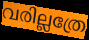
വരില്ലത്രേ